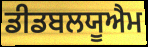
ਡੀਡਬਲਯੂਐਮ